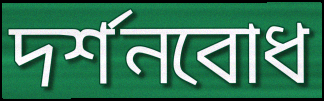
দর্শনবোধ